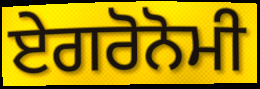
ਏਗਰੋਨੋਮੀ